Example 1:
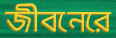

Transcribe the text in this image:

জীবনেরে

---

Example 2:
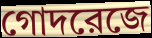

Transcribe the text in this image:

গোদরেজে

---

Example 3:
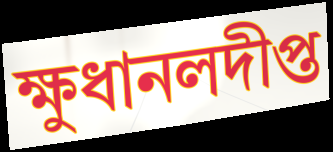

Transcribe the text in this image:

ক্ষুধানলদীপ্ত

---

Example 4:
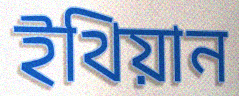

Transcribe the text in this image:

ইথিয়ান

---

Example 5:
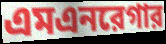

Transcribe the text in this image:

এমএনরেগার